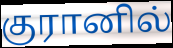
குரானில்